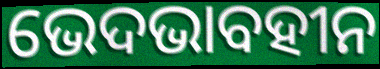
ଭେଦଭାବହୀନ